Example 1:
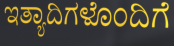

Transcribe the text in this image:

ಇತ್ಯಾದಿಗಳೊಂದಿಗೆ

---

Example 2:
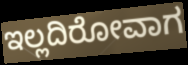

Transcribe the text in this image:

ಇಲ್ಲದಿರೋವಾಗ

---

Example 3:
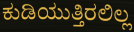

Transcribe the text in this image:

ಕುಡಿಯುತ್ತಿರಲಿಲ್ಲ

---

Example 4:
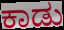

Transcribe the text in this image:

ಕಾಡು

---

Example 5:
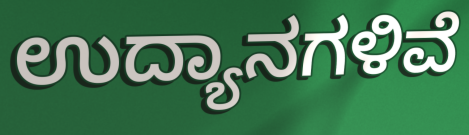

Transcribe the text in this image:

ಉದ್ಯಾನಗಳಿವೆ